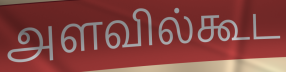
அளவில்கூட